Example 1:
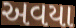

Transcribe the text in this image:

અવયા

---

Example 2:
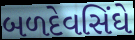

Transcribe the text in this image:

બળદેવસિંઘે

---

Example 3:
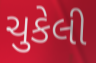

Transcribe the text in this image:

ચુકેલી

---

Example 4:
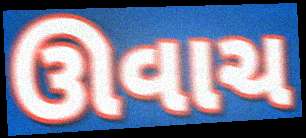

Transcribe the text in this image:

ઊવાચ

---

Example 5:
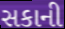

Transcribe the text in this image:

સકાની